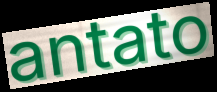
antato